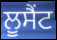
ਲੂਸੈਂਟ